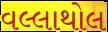
વલ્લાથોલ